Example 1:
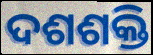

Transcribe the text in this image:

ଦଶଶକ୍ତି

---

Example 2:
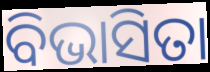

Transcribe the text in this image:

ବିଭାସିତା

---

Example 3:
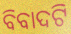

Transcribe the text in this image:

ବିବାଦଟି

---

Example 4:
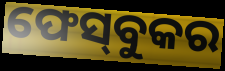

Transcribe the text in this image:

ଫେସ୍‌ବୁକର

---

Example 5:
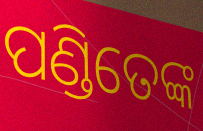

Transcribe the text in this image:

ପଣ୍ଡିତେଙ୍କ